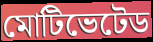
মোটিভেটেড